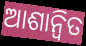
ଆଶାନ୍ବିତ